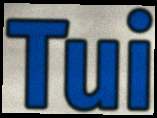
Tui